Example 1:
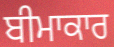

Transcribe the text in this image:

ਬੀਮਾਕਾਰ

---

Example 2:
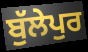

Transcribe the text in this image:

ਬੁੱਲੇਪੁਰ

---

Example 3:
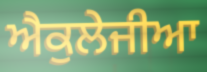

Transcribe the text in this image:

ਐਕੁਲੇਜੀਆ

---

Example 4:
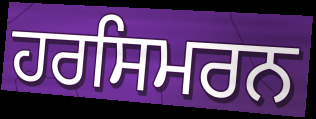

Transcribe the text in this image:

ਹਰਸਿਮਰਨ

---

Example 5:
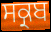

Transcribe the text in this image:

ਸਕ੍ਰਬ